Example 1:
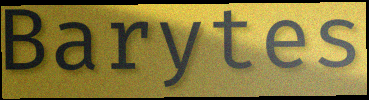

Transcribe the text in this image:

Barytes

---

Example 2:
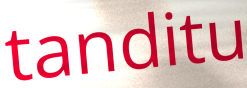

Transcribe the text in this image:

tanditu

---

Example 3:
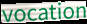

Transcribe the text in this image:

vocation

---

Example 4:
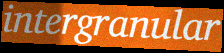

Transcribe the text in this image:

intergranular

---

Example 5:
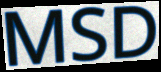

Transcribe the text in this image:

MSD